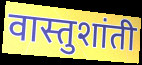
वास्तुशांती